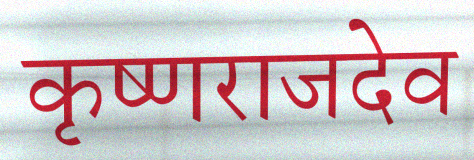
कृष्णराजदेव